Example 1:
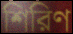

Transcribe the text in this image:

শিরিণ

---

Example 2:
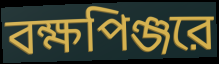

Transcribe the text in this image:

বক্ষপিঞ্জরে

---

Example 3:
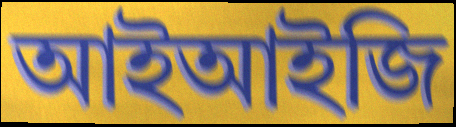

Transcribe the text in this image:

আইআইজি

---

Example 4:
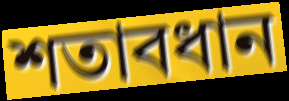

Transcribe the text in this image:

শতাবধান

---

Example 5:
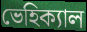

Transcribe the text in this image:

ভেহিক্যাল